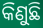
କିଣୁଛି